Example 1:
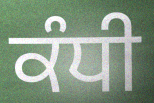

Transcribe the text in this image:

ਕੰਧੀ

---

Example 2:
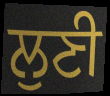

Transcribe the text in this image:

ਲੁਣੀ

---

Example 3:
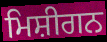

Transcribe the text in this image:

ਮਿਸ਼ੀਗਨ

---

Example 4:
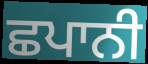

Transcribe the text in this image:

ਛਪਾਨੀ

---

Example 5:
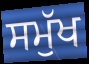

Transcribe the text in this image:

ਸਮੁੱਖ